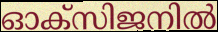
ഓക്സിജനിൽ